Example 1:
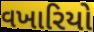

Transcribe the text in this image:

વખારિયો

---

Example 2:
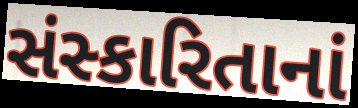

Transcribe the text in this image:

સંસ્કારિતાનાં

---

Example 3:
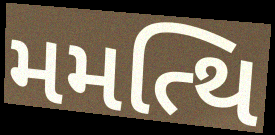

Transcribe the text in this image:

મમત્થિ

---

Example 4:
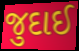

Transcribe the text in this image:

જુદાઈ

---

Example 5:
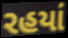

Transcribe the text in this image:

રહયાં